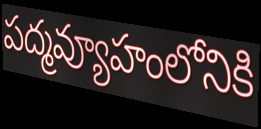
పద్మవ్యూహంలోనికి